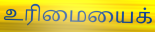
உரிமையைக்